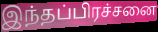
இந்தப்பிரச்சனை